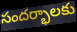
సందర్భాలకు